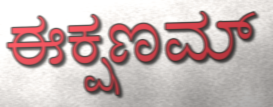
ಈಕ್ಷಣಮ್